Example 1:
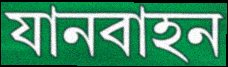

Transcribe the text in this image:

যানবাহন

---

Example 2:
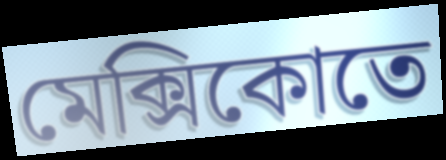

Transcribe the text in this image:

মেক্সিকোতে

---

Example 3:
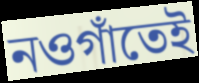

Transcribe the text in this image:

নওগাঁতেই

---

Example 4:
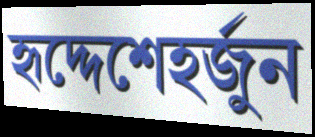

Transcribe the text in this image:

হৃদ্দেশেহর্জুন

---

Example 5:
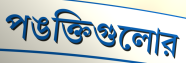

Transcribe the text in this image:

পঙক্তিগুলোর